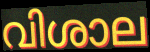
വിശാല